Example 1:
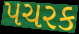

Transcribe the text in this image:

પચરક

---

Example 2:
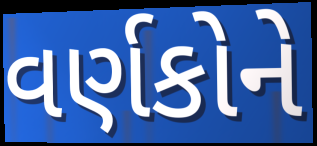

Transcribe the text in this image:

વર્ણકોને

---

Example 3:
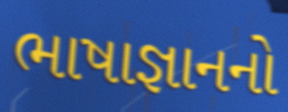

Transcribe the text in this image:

ભાષાજ્ઞાનનો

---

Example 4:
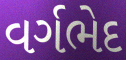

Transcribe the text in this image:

વર્ગભેદ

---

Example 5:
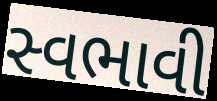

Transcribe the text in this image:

સ્વભાવી